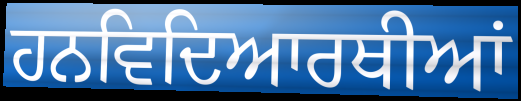
ਹਨਵਿਦਿਆਰਥੀਆਂ